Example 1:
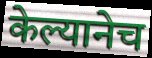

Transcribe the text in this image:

केल्यानेच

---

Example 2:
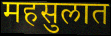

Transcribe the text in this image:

महसुलात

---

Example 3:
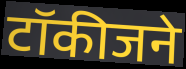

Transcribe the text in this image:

टॉकीजने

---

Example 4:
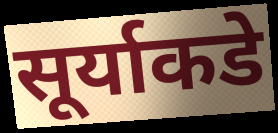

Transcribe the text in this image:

सूर्याकडे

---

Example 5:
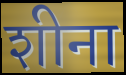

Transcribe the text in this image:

शीना